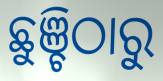
ଛୁଞ୍ଚିଠାରୁ